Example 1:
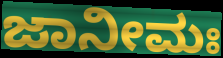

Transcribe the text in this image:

ಜಾನೀಮಃ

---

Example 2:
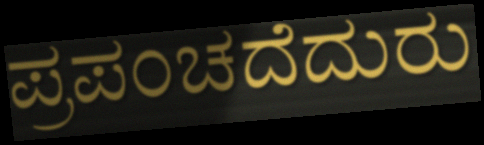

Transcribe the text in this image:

ಪ್ರಪಂಚದೆದುರು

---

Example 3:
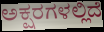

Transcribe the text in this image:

ಅಕ್ಷರಗಳಲ್ಲಿದೆ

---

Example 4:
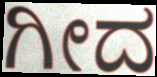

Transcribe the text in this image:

ಗೀದ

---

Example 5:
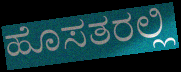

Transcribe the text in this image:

ಹೊಸತರಲ್ಲಿ